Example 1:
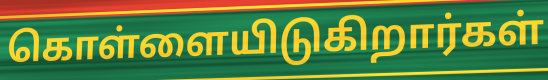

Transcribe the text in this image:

கொள்ளையிடுகிறார்கள்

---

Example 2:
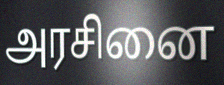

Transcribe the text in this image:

அரசினை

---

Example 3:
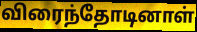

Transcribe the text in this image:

விரைந்தோடினாள்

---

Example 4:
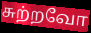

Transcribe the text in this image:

சுற்றவோ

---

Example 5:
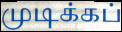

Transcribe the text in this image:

முடிக்கப்